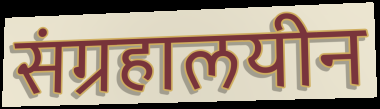
संग्रहालयीन